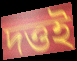
দত্তই